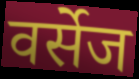
वर्सेज